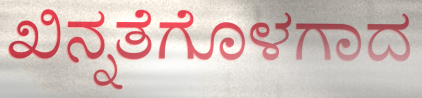
ಖಿನ್ನತೆಗೊಳಗಾದ